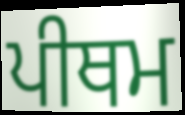
ਪੀਥਮ